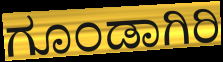
ಗೂಂಡಾಗಿರಿ